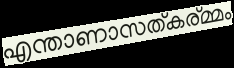
എന്താണാസത്കര്മ്മം